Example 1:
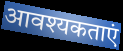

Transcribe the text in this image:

आवश्‍यकताएं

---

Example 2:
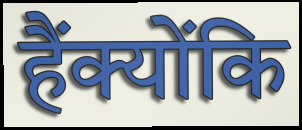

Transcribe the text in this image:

हैंक्योंकि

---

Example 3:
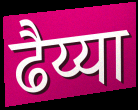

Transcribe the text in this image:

ढैय्या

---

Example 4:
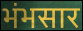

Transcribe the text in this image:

भंभसार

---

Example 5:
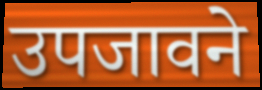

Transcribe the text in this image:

उपजावने